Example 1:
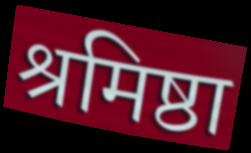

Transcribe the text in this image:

श्रमिष्ठा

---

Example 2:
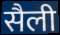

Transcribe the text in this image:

सैली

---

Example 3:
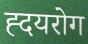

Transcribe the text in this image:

ह्दयरोग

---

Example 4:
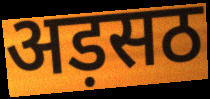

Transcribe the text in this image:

अड़सठ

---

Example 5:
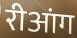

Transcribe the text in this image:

रीआंग